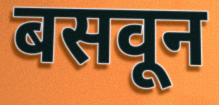
बसवून